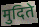
मुदिते